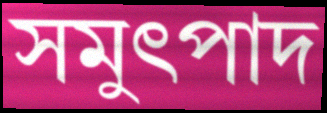
সমুৎপাদ